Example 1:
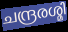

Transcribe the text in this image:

ചന്ദ്രരശ്മി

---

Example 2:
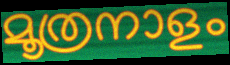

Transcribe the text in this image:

മൂത്രനാളം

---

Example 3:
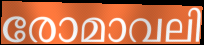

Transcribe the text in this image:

രോമാവലി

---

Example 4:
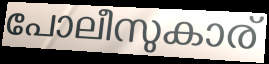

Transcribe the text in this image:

പോലീസുകാര്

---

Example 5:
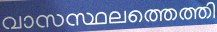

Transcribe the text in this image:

വാസസ്ഥലത്തെത്തി